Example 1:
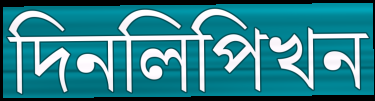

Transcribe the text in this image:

দিনলিপিখন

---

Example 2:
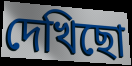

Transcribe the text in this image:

দেখিছো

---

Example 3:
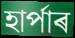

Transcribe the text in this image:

হাৰ্পাৰ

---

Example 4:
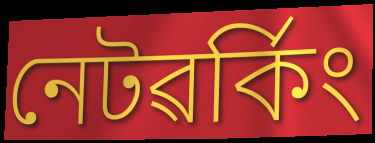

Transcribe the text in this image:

নেটৱৰ্কিং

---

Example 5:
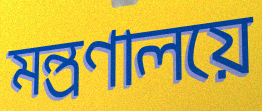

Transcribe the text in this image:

মন্ত্ৰণালয়ে